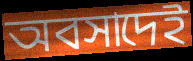
অবসাদেই